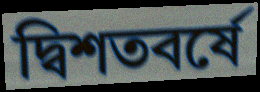
দ্বিশতবর্ষে